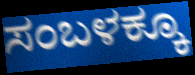
ಸಂಬಳಕ್ಕೂ